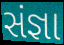
સંજ્ઞા